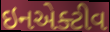
ઇનએક્ટીવ